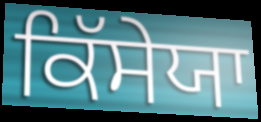
ਕਿੱਸੇਯਾ